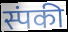
स्पंकी